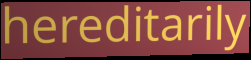
hereditarily